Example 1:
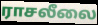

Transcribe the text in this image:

ராசலீலை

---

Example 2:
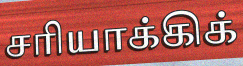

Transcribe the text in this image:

சரியாக்கிக்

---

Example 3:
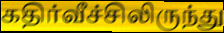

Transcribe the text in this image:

கதிர்வீச்சிலிருந்து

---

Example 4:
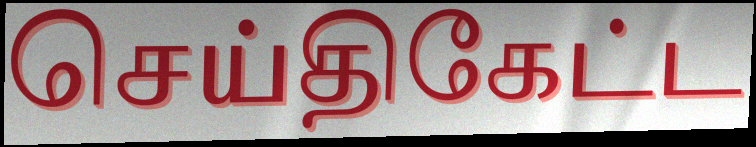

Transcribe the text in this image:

செய்திகேட்ட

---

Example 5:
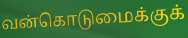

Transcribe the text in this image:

வன்கொடுமைக்குக்